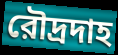
রৌদ্রদাহ